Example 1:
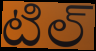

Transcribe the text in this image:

టిల్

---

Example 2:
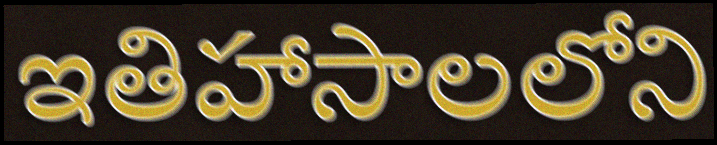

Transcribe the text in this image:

ఇతిహాసాలలోని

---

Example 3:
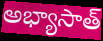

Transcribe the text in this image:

అభ్యాసాత్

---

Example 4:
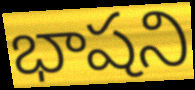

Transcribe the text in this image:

భాషని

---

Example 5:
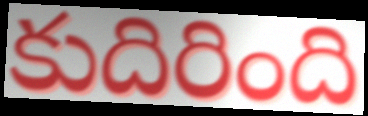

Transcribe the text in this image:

కుదిరింది